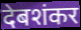
देबशंकर